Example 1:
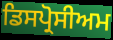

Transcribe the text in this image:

ਡਿਸਪ੍ਰੋਸੀਅਮ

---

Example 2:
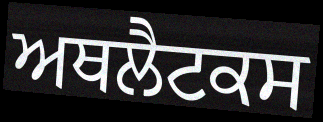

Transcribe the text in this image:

ਅਥਲੈਟਕਸ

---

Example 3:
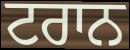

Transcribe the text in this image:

ਟਰਾਨ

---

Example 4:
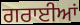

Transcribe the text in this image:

ਗਰਾਈਆਂ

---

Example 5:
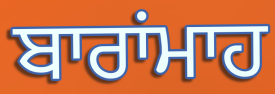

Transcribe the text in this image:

ਬਾਰਾਂਮਾਹ